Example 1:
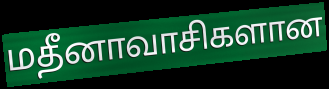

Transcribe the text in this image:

மதீனாவாசிகளான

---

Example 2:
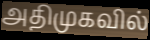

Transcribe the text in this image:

அதிமுகவில்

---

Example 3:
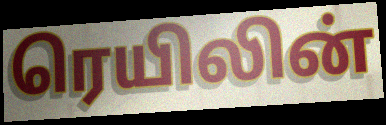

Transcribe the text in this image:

ரெயிலின்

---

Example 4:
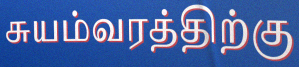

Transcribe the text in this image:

சுயம்வரத்திற்கு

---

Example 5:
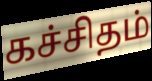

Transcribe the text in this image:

கச்சிதம்